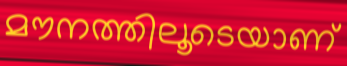
മൗനത്തിലൂടെയാണ്